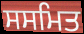
ਸਸਮਿਤ